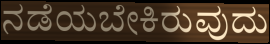
ನಡೆಯಬೇಕಿರುವುದು